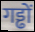
गड्ढों